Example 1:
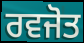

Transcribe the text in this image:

ਰਵਜੋਤ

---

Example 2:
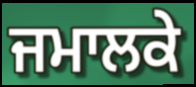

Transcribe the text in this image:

ਜਮਾਲਕੇ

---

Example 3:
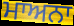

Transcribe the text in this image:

ਮਾਅਨਾ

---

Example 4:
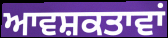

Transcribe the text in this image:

ਆਵਸ਼ਕਤਾਵਾਂ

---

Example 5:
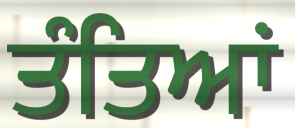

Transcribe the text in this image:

ਤੰਤਿਆਂ